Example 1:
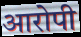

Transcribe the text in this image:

आरोपी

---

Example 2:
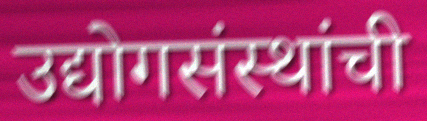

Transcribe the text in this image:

उद्योगसंस्थांची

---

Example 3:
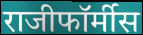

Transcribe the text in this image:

राजीफॉर्मीस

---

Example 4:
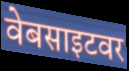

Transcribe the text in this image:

वेबसाइटवर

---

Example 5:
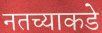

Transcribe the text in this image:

नतच्याकडे